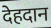
देहदान